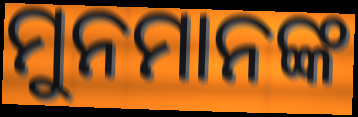
ମୁନମାନଙ୍କ